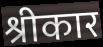
श्रीकार